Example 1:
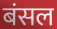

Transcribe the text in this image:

बंसल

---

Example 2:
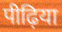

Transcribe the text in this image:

पीढ़िया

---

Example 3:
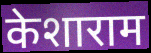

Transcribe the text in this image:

केशाराम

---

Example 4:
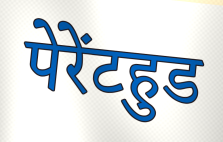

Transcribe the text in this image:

पेरेंटहुड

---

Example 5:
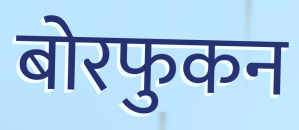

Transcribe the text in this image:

बोरफुकन